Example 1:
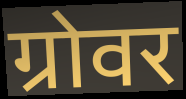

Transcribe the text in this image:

ग्रोवर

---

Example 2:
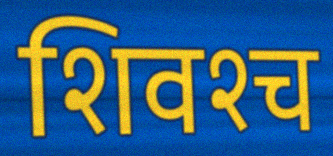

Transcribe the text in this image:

शिवश्च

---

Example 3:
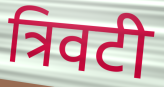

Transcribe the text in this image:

त्रिवटी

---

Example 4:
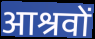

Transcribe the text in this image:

आश्रवों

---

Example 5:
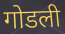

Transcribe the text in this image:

गोडली